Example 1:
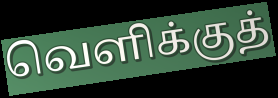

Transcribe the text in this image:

வெளிக்குத்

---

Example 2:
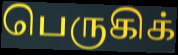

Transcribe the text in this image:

பெருகிக்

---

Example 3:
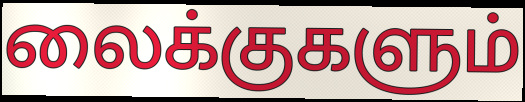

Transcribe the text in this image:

லைக்குகளும்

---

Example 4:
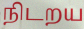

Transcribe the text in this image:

நிடறய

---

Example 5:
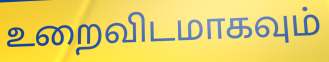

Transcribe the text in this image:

உறைவிடமாகவும்